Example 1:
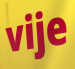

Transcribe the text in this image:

vije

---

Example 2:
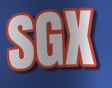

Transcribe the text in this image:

SGX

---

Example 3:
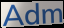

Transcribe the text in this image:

Adm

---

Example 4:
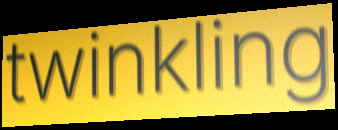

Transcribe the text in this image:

twinkling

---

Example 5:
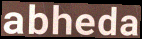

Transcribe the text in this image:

abheda